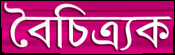
বৈচিত্ৰ্যক